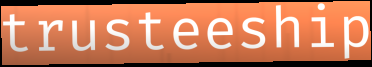
trusteeship